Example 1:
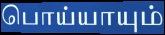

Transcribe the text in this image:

பொய்யாயும்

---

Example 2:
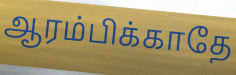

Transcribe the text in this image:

ஆரம்பிக்காதே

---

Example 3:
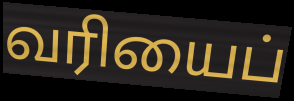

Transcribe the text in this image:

வரியைப்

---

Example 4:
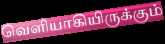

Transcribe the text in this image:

வெளியாகியிருக்கும்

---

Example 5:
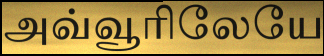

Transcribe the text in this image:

அவ்வூரிலேயே